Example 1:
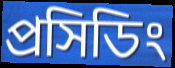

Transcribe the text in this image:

প্রসিডিং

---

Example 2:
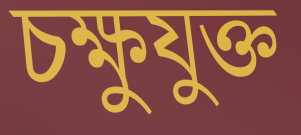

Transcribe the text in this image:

চক্ষুযুক্ত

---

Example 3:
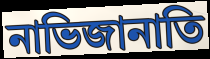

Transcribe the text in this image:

নাভিজানাতি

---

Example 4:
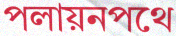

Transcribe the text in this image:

পলায়নপথে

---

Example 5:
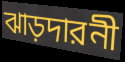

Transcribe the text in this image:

ঝাড়দারনী